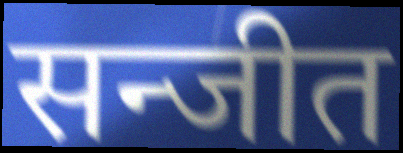
सन्जीत